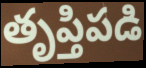
తృప్తిపడి